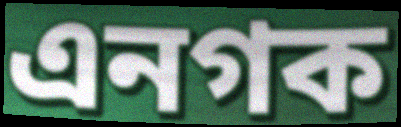
এনগক